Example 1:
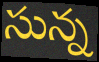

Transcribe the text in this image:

సున్న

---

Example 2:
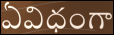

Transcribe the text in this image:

ఏవిధంగా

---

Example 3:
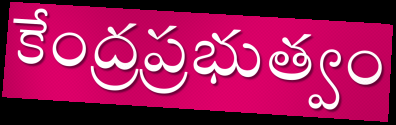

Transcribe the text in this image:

కేంద్రప్రభుత్వం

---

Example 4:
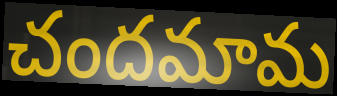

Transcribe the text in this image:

చందమామ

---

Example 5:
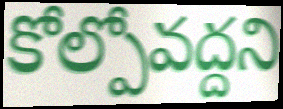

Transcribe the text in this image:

కోల్పోవద్దని